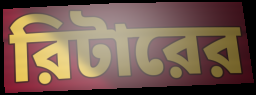
রিটারের